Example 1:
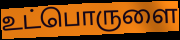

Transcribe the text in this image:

உட்பொருளை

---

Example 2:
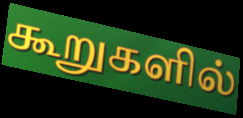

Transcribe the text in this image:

கூறுகளில்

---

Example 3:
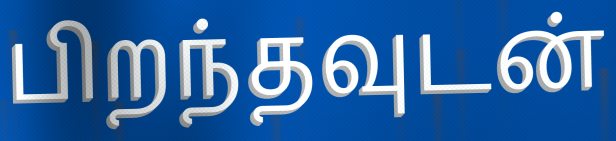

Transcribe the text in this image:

பிறந்தவுடன்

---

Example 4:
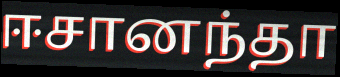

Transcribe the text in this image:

ஈசானந்தா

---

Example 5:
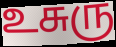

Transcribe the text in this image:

உசுரு